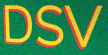
DSV